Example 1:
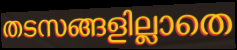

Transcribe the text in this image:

തടസങ്ങളില്ലാതെ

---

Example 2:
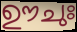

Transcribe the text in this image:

ഊചുഃ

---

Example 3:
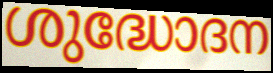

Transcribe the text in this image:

ശുദ്ധോദന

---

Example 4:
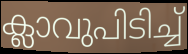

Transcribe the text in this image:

ക്ലാവുപിടിച്ച്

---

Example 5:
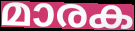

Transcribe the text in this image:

മാരക